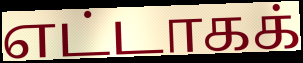
எட்டாகக்